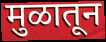
मुळातून